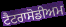
ਟੈਟਰਾਸੋਡੀਅਮ